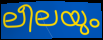
ലീലയും